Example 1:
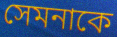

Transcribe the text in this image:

সেমনাকে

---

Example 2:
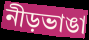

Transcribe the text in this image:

নীড়ভাঙা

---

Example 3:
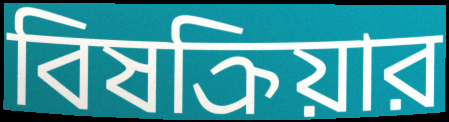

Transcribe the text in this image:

বিষক্রিয়ার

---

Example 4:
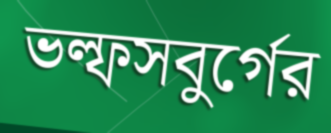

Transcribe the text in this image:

ভল্ফসবুর্গের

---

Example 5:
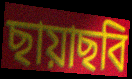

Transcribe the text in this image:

ছায়াছবি